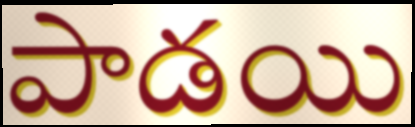
పాడయి